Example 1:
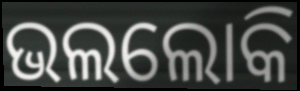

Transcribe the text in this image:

ଭଲଲୋକି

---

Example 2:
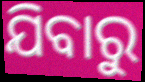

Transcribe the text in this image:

ଯିବାରୁ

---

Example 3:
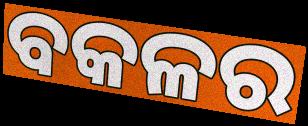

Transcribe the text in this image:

ବକଳର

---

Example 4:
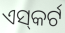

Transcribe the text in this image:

ଏସ୍‌କର୍ଟ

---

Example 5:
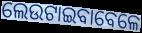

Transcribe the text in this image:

ଲେଉଟାଇବାବେଳେ